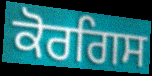
ਕੋਰਗਿਸ